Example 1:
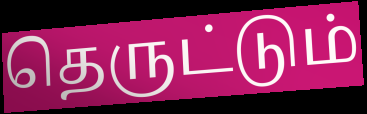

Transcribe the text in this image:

தெருட்டும்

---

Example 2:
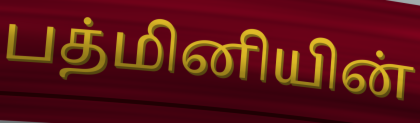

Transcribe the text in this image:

பத்மினியின்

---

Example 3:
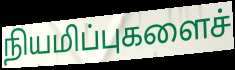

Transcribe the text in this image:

நியமிப்புகளைச்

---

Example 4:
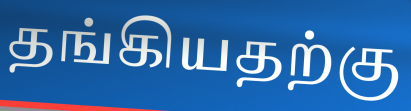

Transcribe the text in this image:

தங்கியதற்கு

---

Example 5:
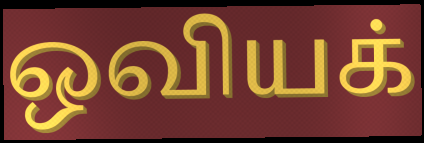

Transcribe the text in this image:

ஒவியக்